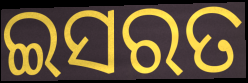
ଇସରତ